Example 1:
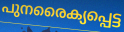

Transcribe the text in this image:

പുനരൈക്യപ്പെട്ട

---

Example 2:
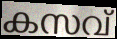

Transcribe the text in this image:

കസവ്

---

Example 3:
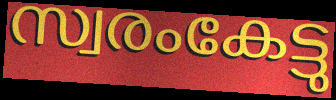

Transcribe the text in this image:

സ്വരംകേട്ടു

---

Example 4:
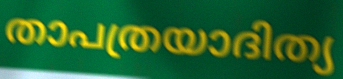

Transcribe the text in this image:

താപത്രയാദിത്യ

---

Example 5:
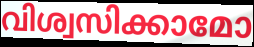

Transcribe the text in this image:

വിശ്വസിക്കാമോ